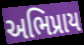
અભિપ્રાય